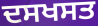
ਦਸਖਸਤ